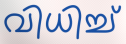
വിധിച്ച്